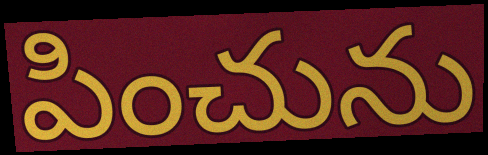
పించును